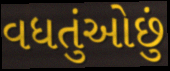
વધતુંઓછું